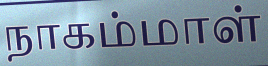
நாகம்மாள்